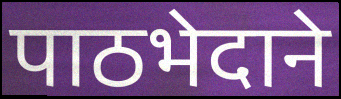
पाठभेदाने